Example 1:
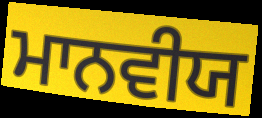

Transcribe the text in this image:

ਮਾਨਵੀਯ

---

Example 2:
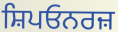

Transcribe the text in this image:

ਸ਼ਿਪਓਨਰਜ਼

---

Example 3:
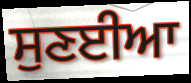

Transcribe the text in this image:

ਸੁਣਈਆ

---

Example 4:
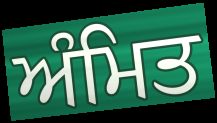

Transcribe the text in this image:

ਅੰਮਿਤ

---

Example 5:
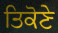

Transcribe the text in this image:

ਤਿਕੋਣੇ